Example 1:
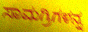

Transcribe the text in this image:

ಸಾಮಗ್ರಿಗಳನ್ನ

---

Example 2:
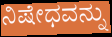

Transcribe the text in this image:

ನಿಷೇಧವನ್ನು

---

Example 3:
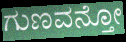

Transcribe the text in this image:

ಗುಣವನ್ತೋ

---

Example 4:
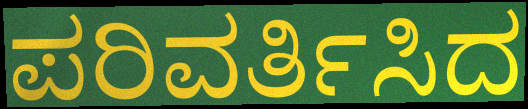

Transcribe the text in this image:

ಪರಿವರ್ತಿಸಿದ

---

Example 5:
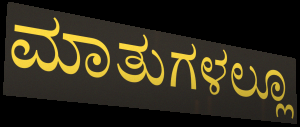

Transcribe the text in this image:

ಮಾತುಗಳಲ್ಲೂ